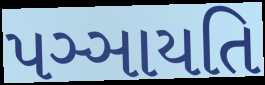
પઞ્ઞાયતિ